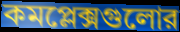
কমপ্লেক্সগুলোর